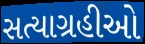
સત્યાગ્રહીઓ